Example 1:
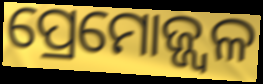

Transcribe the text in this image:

ପ୍ରେମୋଜ୍ଜ୍ୱଳ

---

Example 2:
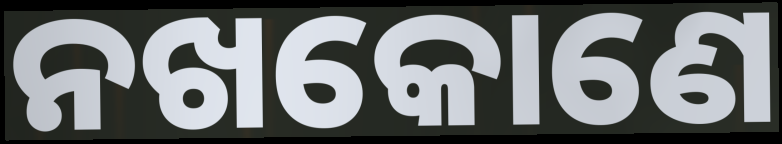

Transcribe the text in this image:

ନଖକୋଣେ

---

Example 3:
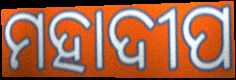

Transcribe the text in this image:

ମହାଦୀପ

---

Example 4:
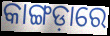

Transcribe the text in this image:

କାଙ୍ଗଡ଼ାରେ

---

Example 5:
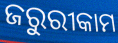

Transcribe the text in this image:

ଜରୁରୀକାମ